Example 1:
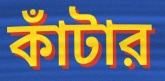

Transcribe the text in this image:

কাঁটার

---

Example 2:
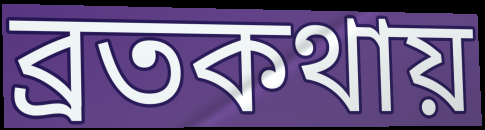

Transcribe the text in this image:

ব্রতকথায়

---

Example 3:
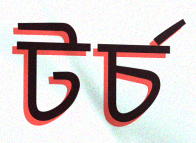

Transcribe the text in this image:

টর্চ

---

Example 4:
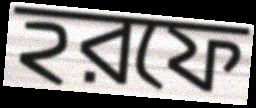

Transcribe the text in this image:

হরফে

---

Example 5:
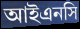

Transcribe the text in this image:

আইএনসি